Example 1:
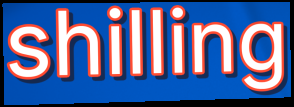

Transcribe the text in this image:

shilling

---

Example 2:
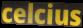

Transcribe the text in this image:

celcius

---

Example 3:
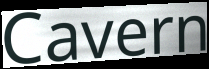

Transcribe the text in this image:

Cavern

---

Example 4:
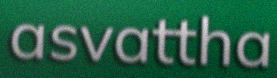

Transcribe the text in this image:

asvattha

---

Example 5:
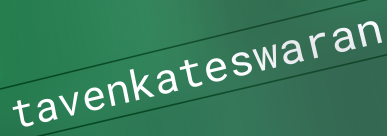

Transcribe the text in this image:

tavenkateswaran